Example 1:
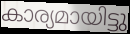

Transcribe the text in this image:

കാര്യമായിട്ടു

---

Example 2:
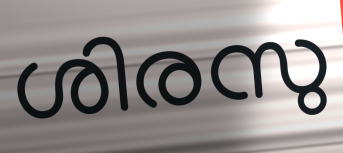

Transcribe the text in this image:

ശിരസു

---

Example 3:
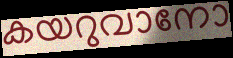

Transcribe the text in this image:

കയറുവാനോ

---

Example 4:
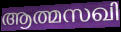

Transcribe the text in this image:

ആത്മസഖി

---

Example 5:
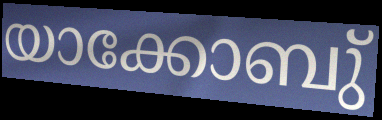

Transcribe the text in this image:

യാക്കോബു്